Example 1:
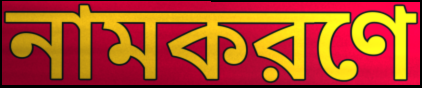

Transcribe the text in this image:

নামকরণে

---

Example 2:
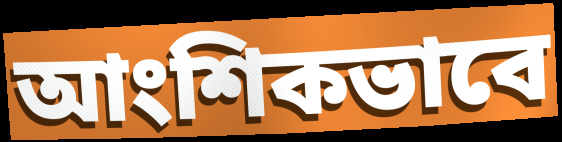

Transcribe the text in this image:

আংশিকভাবে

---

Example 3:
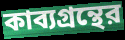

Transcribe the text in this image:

কাব্যগ্রন্থের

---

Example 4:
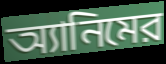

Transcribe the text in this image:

অ্যানিমের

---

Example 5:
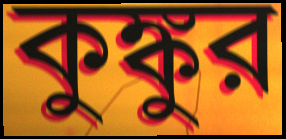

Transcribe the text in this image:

কুঙ্কুর